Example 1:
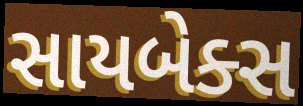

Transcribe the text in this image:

સાયબેક્સ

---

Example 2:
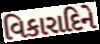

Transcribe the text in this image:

વિકારાદિને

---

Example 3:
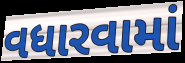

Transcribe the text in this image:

વધારવામાં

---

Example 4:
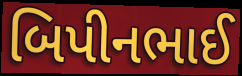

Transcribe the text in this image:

બિપીનભાઈ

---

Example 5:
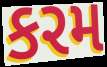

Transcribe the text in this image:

કરમ